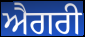
ਐਗਰੀ